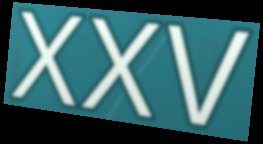
XXV